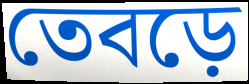
তেবড়ে